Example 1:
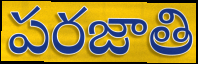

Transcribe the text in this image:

పరజాతి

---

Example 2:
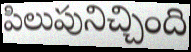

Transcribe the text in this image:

పిలుపునిచ్చింది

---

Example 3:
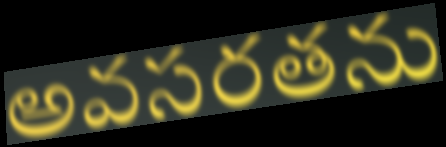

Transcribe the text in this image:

అవసరతను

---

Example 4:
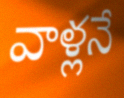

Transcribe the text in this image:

వాళ్లనే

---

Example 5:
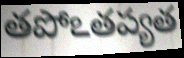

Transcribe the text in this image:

తపోఽతప్యత